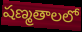
షణ్మతాలలో